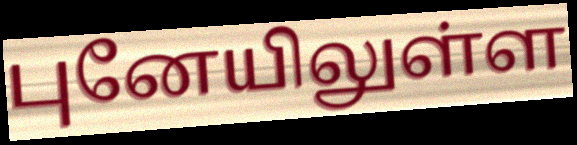
புனேயிலுள்ள